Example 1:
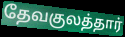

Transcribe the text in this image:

தேவகுலத்தார்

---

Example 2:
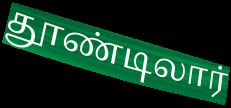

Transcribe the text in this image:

தூண்டிலார்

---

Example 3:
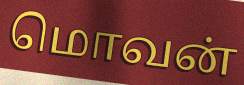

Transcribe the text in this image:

மொவன்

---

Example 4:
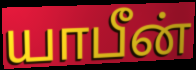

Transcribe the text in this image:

யாபீன்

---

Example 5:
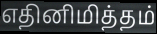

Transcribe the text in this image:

எதினிமித்தம்